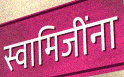
स्वामिजींना